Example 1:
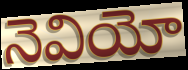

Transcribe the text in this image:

నెవియో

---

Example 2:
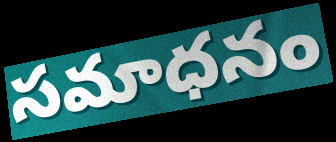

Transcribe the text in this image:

సమాధనం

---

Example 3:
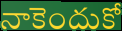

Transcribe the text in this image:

నాకెందుకో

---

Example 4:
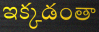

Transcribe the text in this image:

ఇక్కడంతా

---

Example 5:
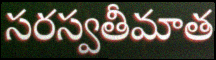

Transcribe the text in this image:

సరస్వతీమాత